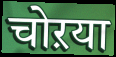
चोऱया